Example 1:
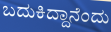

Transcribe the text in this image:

ಬದುಕಿದ್ದಾನೆಂದು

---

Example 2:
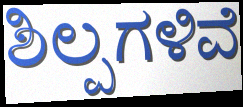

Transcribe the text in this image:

ಶಿಲ್ಪಗಳಿವೆ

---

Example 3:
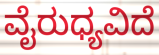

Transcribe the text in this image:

ವೈರುಧ್ಯವಿದೆ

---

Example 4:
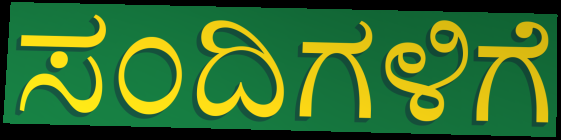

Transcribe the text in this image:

ಸಂದಿಗಳಿಗೆ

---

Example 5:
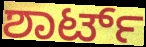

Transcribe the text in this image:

ಶಾರ್ಟ್